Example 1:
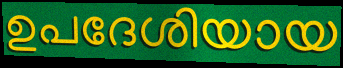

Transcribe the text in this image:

ഉപദേശിയായ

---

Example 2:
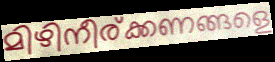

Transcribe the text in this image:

മിഴിനീര്ക്കണങ്ങളെ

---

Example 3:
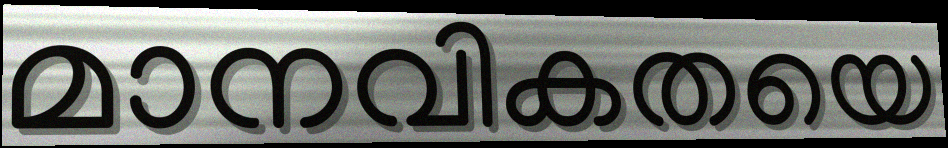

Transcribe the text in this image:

മാനവികതയെ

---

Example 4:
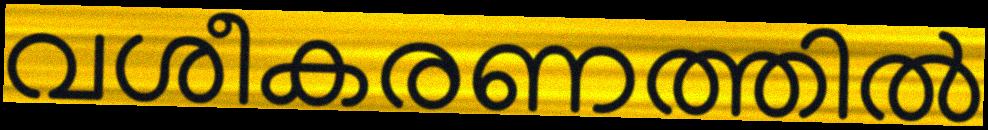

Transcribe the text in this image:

വശീകരണത്തിൽ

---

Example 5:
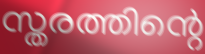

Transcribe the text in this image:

സ്തരത്തിന്റെ